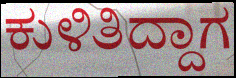
ಕುಳಿತಿದ್ದಾಗ